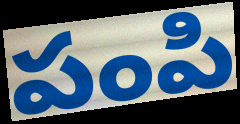
పంపి